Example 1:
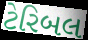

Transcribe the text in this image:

ટેરિબલ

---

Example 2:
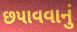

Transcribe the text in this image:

છપાવવાનું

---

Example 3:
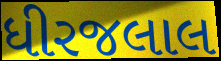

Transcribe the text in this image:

ધીરજલાલ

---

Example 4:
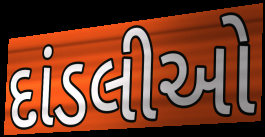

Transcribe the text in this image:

દાંડલીઓ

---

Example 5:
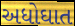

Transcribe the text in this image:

અધોઘાત